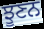
ਝੂਣਨ